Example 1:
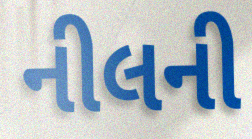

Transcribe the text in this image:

નીલની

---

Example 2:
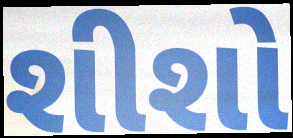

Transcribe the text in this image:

શીશો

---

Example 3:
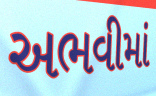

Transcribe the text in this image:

અભવીમાં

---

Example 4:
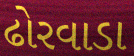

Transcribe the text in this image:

ઢોરવાડા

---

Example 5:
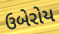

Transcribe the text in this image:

ઉબેરોય